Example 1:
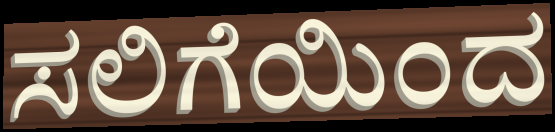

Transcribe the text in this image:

ಸಲಿಗೆಯಿಂದ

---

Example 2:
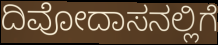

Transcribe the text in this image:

ದಿವೋದಾಸನಲ್ಲಿಗೆ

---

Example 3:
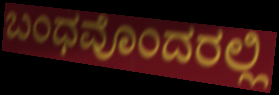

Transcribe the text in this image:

ಬಂಧವೊಂದರಲ್ಲಿ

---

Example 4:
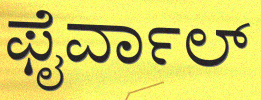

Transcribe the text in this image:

ಫೈರ್ವಾಲ್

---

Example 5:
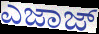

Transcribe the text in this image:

ಎಜಾಜ್